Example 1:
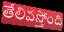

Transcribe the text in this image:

తేలివస్తోంది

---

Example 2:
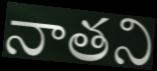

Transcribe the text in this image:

నాతని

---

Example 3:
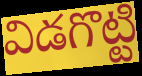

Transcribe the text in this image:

విడగొట్టి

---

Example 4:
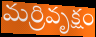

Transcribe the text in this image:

మర్రివృక్షం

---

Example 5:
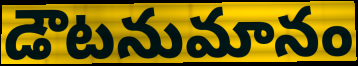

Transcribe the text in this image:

డౌటనుమానం